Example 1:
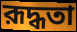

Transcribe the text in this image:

রূদ্ধতা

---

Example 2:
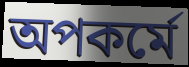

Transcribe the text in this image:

অপকর্মে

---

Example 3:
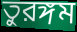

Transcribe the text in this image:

তুরঙ্গম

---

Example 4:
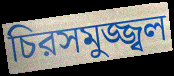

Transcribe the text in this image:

চিরসমুজ্জ্বল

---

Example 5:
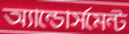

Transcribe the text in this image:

অ্যান্ডোর্সমেন্ট